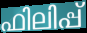
ഫിലിപ്പ്